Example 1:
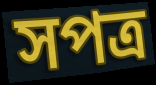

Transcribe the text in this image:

সপত্র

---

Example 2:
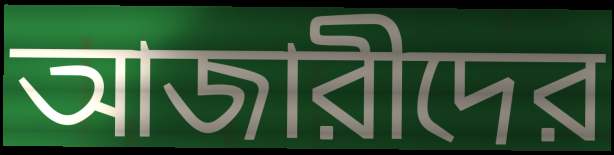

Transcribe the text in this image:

আজারীদের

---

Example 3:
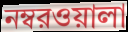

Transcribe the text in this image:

নম্বরওয়ালা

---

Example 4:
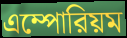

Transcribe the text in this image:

এম্পোরিয়ম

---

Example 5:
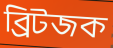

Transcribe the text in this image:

ব্রিটজক